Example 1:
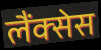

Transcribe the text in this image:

लैंक्‍सेस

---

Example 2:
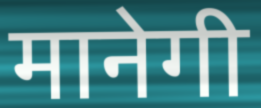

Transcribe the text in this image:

मानेगी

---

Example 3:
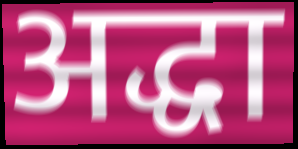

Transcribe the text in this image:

अद्धा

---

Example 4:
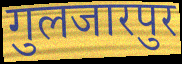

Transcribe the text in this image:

गुलजारपुर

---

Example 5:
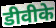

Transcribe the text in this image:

डीवीके